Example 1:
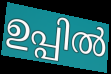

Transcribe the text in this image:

ഉപ്പിൽ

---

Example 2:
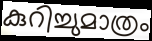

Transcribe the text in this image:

കുറിച്ചുമാത്രം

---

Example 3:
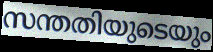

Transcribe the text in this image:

സന്തതിയുടെയും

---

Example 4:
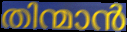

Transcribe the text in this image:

തിന്മാൻ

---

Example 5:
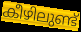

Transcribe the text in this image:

കീഴിലുണ്ട്